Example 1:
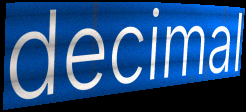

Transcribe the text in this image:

decimal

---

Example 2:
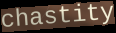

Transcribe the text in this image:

chastity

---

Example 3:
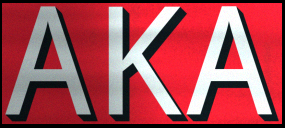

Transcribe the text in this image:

AKA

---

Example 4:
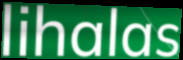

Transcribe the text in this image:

lihalas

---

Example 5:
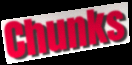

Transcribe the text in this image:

Chunks